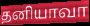
தனியாவா